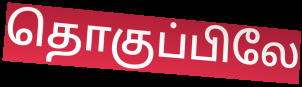
தொகுப்பிலே